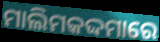
ମାଲିମକଦ୍ଦମାରେ